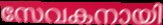
സേവകനായി